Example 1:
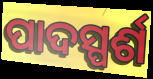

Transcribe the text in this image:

ପାଦସ୍ପର୍ଶ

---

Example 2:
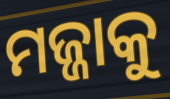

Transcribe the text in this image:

ମଜ୍ଜାକୁ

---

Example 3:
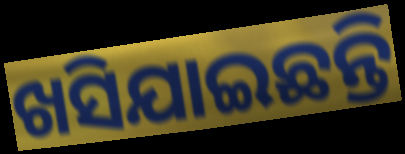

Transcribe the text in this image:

ଖସିଯାଇଛନ୍ତି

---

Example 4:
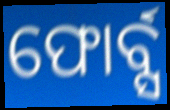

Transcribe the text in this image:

ଫୋର୍ବ୍ସ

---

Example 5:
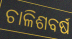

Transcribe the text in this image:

ଚାଳିଶବର୍ଷ